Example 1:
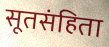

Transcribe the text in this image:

सूतसंहिता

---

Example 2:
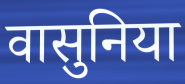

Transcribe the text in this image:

वासुनिया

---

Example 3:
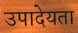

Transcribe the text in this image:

उपादेयता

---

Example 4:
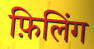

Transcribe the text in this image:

फ़िलिंग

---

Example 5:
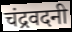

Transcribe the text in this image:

चंद्रवदनी